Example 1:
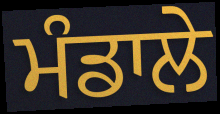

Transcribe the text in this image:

ਮੰਡਾਲੇ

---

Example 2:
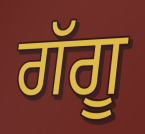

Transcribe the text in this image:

ਗੱਗੂ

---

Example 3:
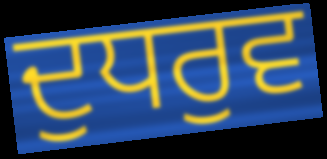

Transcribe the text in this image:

ਦੁਧਰੁਵ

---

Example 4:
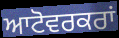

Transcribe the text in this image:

ਆਟੋਵਰਕਰਾਂ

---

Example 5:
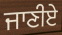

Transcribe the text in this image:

ਜਾਣੀਏ